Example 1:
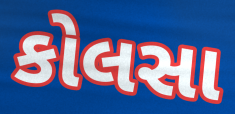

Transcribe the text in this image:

કોલસા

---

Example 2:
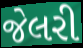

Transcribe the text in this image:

જેલરી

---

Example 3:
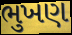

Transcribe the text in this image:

ભુખણ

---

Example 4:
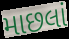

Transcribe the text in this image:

માછલાં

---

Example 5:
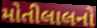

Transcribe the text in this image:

મોતીલાલનો